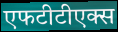
एफटीटीएक्स